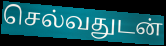
செல்வதுடன்